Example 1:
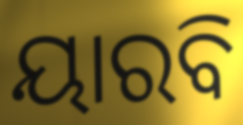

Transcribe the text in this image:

ୟାରବି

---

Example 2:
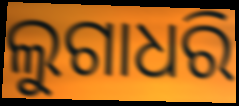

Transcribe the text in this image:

ଲୁଗାଧରି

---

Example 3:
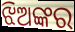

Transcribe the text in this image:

ଝିଅଙ୍କର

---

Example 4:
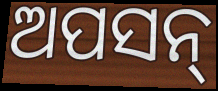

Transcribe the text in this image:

ଅପସନ୍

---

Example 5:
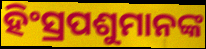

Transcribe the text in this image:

ହିଂସ୍ରପଶୁମାନଙ୍କ